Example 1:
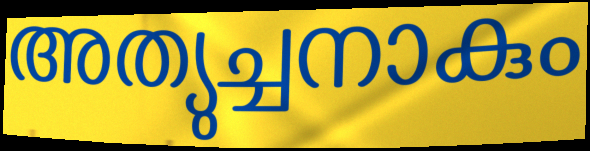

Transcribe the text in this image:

അത്യുച്ചനാകും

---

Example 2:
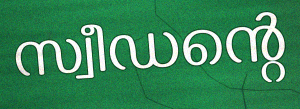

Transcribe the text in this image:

സ്വീഡന്റെ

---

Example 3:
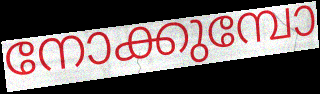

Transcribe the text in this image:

നോക്കുമ്പോ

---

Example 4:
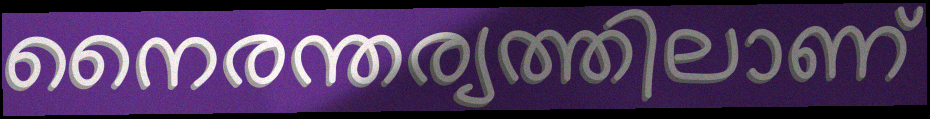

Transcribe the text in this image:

നൈരന്തര്യത്തിലാണ്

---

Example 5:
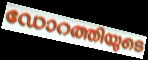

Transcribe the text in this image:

ഡോറത്തിയുടെ